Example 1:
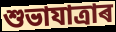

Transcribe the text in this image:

শুভাযাত্ৰাৰ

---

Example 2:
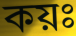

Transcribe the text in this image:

কয়ঃ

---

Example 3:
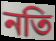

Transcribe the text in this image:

নতি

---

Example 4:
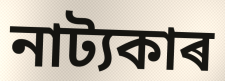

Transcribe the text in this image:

নাট্যকাৰ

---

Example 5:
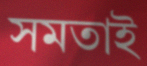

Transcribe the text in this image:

সমতাই